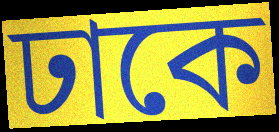
ঢাকে